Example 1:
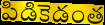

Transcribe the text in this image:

పిడికెడంత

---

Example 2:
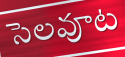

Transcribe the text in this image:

సెలవూట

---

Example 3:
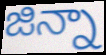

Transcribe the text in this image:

జిన్నా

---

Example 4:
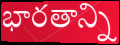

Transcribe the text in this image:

భారతాన్ని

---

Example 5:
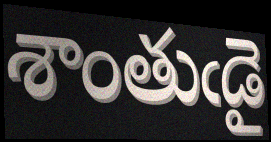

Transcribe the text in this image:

శాంతుఁడై